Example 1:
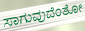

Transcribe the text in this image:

ಸಾಗುವುದೆಂತೋ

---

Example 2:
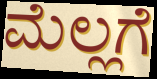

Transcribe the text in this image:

ಮೆಲ್ಲಗೆ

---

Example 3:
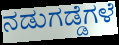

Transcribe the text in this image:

ನಡುಗಡ್ಡೆಗಳೆ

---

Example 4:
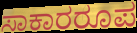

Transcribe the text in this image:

ಸಾಕಾರರೂಪ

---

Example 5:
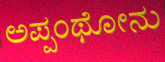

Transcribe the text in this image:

ಅಪ್ಪಂಥೋನು